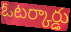
ఓటర్కార్డు